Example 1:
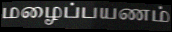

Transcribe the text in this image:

மழைப்பயணம்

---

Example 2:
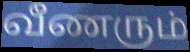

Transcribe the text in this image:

வீணரும்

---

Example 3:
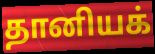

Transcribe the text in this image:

தானியக்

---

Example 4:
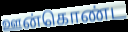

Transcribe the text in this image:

ஊன்கொண்ட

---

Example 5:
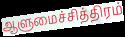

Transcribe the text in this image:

ஆளுமைச்சித்திரம்